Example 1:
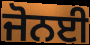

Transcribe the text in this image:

ਜੋਨਈ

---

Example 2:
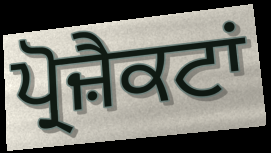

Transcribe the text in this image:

ਪ੍ਰੋਜ਼ੈਕਟਾਂ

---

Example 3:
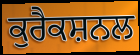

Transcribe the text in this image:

ਕੁਰੈਕਸ਼ਨਲ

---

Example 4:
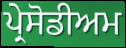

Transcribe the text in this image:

ਪ੍ਰੇਸੋਡੀਅਮ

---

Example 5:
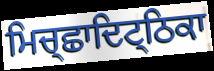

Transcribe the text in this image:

ਮਿਚ੍ਛਾਦਿਟ੍ਠਿਕਾ